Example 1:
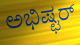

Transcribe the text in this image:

ಅಭಿಷ್ಟರ್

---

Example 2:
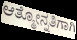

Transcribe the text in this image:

ಆತ್ಮೋನ್ನತಿಗಾಗಿ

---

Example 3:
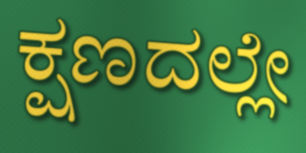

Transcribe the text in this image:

ಕ್ಷಣದಲ್ಲೇ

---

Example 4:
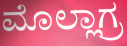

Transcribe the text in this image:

ಮೊಲ್ಲಾಗ್ರ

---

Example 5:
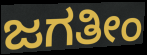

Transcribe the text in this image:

ಜಗತೀಂ